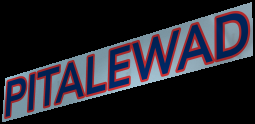
PITALEWAD